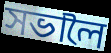
সভালৈ